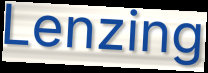
Lenzing